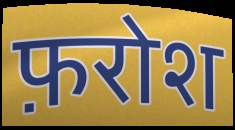
फ़रोश